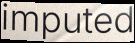
imputed